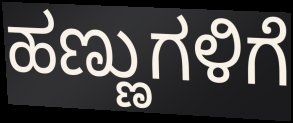
ಹಣ್ಣುಗಳಿಗೆ